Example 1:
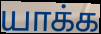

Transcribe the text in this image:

யாக்க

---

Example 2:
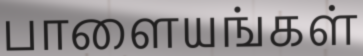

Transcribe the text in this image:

பாளையங்கள்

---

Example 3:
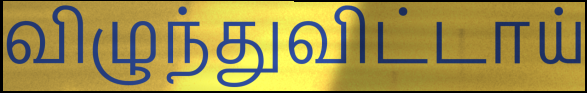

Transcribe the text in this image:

விழுந்துவிட்டாய்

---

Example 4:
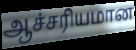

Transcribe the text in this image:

ஆச்சரியமான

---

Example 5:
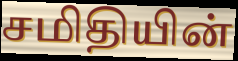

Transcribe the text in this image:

சமிதியின்